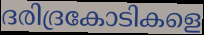
ദരിദ്രകോടികളെ